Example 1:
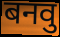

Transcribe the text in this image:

बनवु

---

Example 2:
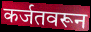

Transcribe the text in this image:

कर्जतवरून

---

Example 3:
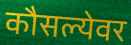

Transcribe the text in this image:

कौसल्येवर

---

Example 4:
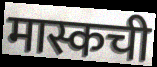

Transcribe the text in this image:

मास्कची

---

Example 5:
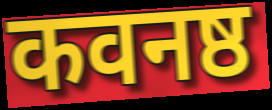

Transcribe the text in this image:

कवनष्ठ